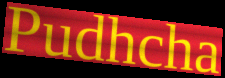
Pudhcha